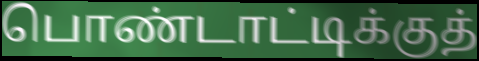
பொண்டாட்டிக்குத்